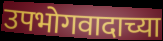
उपभोगवादाच्या